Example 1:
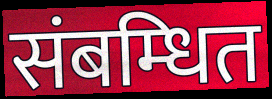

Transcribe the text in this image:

संबम्धित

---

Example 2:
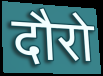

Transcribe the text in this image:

दौरो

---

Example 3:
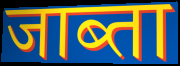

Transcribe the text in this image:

जाब्ता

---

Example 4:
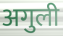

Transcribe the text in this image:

अगुली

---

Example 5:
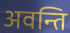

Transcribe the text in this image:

अवन्ति